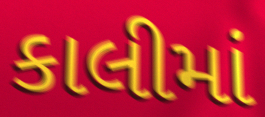
કાલીમાં